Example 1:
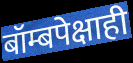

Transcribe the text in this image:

बॉम्बपेक्षाही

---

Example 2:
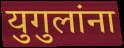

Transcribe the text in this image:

युगुलांना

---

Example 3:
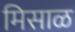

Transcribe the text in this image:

मिसाळ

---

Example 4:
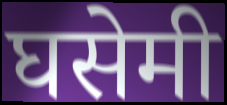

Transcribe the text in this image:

घसेमी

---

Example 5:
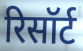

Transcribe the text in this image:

रिसॉर्ट